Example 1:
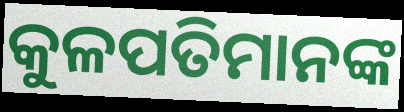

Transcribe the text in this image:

କୁଳପତିମାନଙ୍କ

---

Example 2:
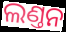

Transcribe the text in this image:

ଲଣ୍ତନ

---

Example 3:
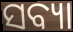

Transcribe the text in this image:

ସବ୍ୟା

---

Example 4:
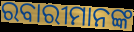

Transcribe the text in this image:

ରବାରୀମାନଙ୍କ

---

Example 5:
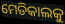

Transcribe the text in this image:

ମେଡିକାଲକୁ